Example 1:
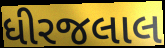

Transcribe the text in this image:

ધીરજલાલ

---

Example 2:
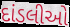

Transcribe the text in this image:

દાંડલીઓ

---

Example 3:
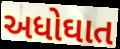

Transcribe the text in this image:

અધોઘાત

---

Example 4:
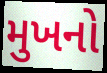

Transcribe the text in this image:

મુખનો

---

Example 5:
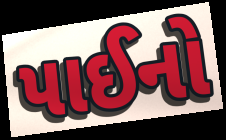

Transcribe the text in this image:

પાઈનો